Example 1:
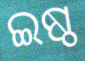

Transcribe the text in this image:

ଇଷ୍ଠ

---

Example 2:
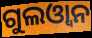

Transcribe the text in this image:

ଗୁଲଓ୍ୱାନ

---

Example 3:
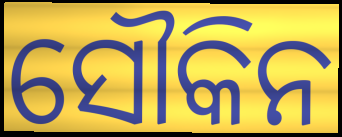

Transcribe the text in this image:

ସୌକିନ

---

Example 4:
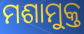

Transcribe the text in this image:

ମଶାମୁକ୍ତ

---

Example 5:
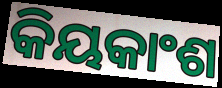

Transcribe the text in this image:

କିୟକାଂଶ